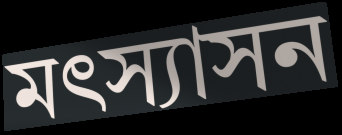
মৎস্যাসন